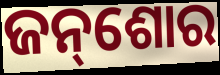
ଜନ୍‌ଶୋର